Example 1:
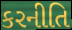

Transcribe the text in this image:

કરનીતિ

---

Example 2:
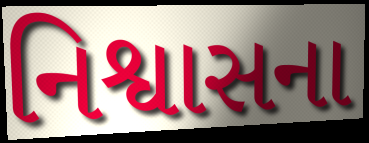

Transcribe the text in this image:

નિશ્વાસના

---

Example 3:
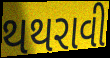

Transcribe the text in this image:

થથરાવી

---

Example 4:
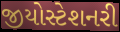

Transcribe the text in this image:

જીયોસ્ટેશનરી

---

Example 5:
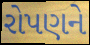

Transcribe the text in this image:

રોપણને